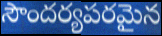
సౌందర్యపరమైన